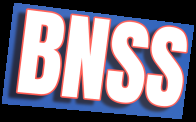
BNSS